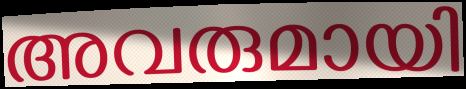
അവരുമായി